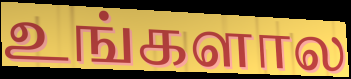
உங்களால